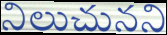
నిలుచునని